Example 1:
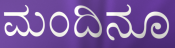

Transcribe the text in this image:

ಮಂದಿನೂ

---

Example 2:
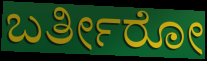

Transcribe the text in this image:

ಬರ್ತೀರೋ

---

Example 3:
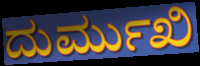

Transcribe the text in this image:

ದುರ್ಮುಖಿ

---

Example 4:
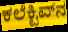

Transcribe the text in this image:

ಕಲೆಕ್ಟಿವ್‌ನ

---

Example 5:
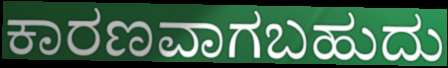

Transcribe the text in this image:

ಕಾರಣವಾಗಬಹುದು